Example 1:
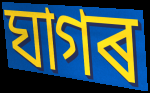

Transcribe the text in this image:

ঘাগৰ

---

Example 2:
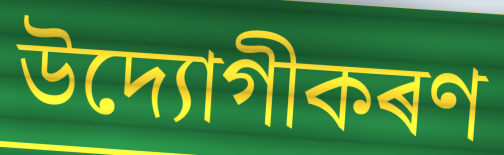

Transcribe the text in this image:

উদ্যোগীকৰণ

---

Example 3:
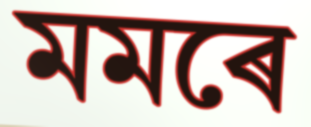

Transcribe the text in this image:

মমৰে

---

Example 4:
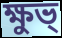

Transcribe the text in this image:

ক্ষুভ্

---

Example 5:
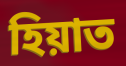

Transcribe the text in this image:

হিয়াত